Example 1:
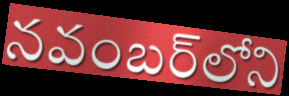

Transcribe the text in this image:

నవంబర్‌లోని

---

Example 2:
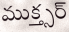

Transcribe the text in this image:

ముక్త్సర్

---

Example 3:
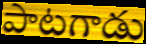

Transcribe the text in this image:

పాటగాడు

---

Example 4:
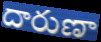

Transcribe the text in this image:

దారుణా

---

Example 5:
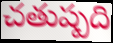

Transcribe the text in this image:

చతుష్పది